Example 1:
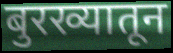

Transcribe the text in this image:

बुरख्यातून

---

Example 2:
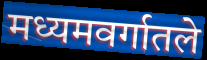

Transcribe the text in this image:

मध्यमवर्गातले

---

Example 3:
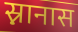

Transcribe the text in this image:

स्नानास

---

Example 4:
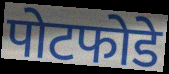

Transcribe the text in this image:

पोटफोडे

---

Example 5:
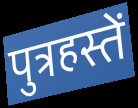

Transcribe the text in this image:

पुत्रहस्तें